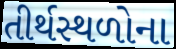
તીર્થસ્થળોના